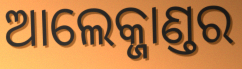
ଆଲେକ୍ଜାଣ୍ଡର